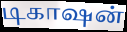
டிகாஷன்